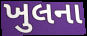
ખુલના